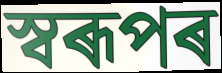
স্বৰূপৰ